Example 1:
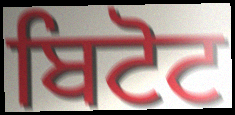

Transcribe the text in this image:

ਬਿਟੋਟ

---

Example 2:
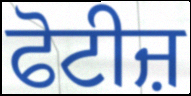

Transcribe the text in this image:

ਫੋਟੀਜ਼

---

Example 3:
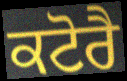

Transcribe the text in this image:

ਕਟੋਰੈ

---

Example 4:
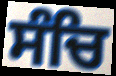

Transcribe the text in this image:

ਸੰਚਿ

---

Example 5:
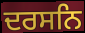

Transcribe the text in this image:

ਦਰਸਨਿ